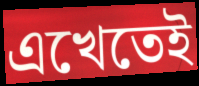
এখেতেই